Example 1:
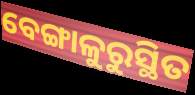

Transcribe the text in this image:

ବେଙ୍ଗାଳୁରୁସ୍ଥିତ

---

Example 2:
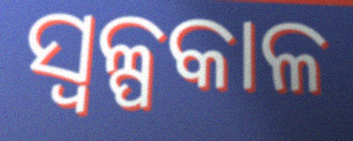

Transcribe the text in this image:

ସ୍ୱଳ୍ପକାଳ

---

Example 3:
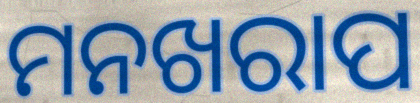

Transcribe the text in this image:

ମନଖରାପ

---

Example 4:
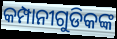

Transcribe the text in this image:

କମ୍ପାନୀଗୁଡିକଙ୍କ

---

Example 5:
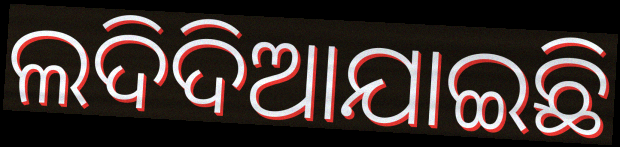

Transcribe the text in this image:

ଲଦିଦିଆଯାଇଛି